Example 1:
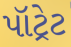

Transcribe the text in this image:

પૉટ્રેટ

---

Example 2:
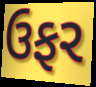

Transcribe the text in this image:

ઉફર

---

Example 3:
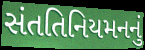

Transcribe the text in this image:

સંતતિનિયમનનું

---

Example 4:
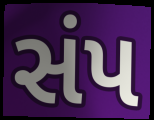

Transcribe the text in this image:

સંપ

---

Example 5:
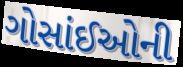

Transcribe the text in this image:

ગોસાંઈઓની